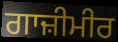
ਗਾਜ਼ੀਮੀਰ